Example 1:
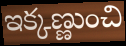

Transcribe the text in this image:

ఇక్కణ్ణుంచి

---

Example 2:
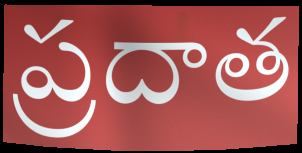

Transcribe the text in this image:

ప్రదాత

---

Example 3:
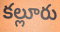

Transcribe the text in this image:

కల్లూరు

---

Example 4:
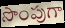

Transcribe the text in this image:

సొంపుగా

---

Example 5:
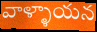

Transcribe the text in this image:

వాళ్ళాయన